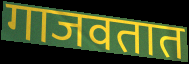
गाजवतात